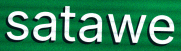
satawe